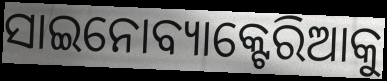
ସାଇନୋବ୍ୟାକ୍ଟେରିଆକୁ